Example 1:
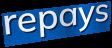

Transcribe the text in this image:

repays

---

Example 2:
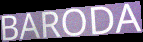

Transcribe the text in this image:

BARODA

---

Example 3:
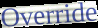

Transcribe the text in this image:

Override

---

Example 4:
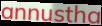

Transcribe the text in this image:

annustha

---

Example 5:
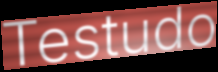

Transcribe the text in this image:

Testudo